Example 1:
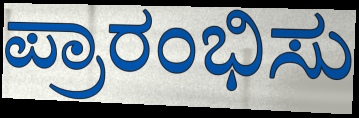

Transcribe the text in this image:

ಪ್ರಾರಂಭಿಸು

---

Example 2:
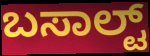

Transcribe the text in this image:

ಬಸಾಲ್ಟ್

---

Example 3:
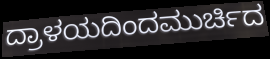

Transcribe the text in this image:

ದ್ರಾಳಯದಿಂದಮುರ್ಚಿದ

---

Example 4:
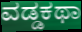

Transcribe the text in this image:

ವಡ್ಡಕಥಾ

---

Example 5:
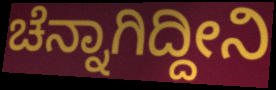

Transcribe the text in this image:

ಚೆನ್ನಾಗಿದ್ದೀನಿ